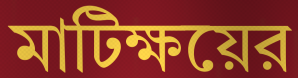
মাটিক্ষয়ের